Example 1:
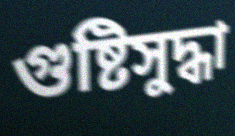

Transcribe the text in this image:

গুষ্টিসুদ্ধা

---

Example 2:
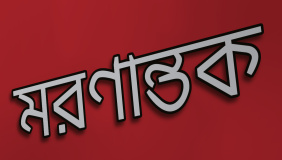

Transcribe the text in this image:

মরণান্তক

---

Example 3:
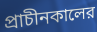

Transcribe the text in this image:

প্রাচীনকালের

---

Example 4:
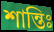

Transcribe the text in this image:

শান্তিঃ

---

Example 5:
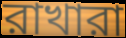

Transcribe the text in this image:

রাখারা